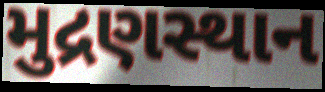
મુદ્રણસ્થાન